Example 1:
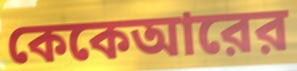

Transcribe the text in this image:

কেকেআরের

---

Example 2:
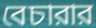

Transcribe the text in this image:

বেচারার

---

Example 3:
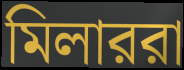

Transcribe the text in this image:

মিলাররা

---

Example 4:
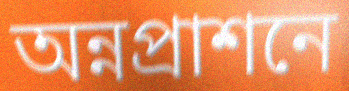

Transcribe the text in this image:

অন্নপ্রাশনে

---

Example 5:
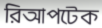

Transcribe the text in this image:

রিআপটেক